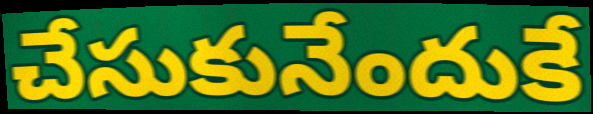
చేసుకునేందుకే